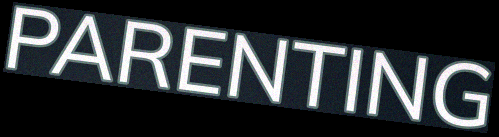
PARENTING